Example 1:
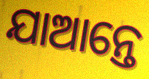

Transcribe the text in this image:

ଯାଆନ୍ତେ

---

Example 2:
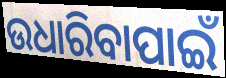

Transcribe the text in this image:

ଉଧାରିବାପାଇଁ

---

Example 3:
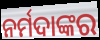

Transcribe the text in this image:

ନର୍ମଦାଙ୍କର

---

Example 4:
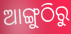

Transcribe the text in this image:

ଆଙ୍ଗୁଠିରୁ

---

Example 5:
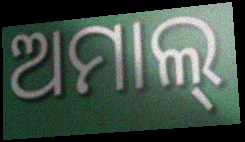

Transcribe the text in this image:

ଅମାଲ୍